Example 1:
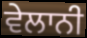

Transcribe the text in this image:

ਵੇਲਾਨੀ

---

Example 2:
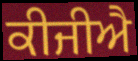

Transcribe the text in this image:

ਕੀਜੀਐ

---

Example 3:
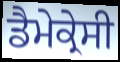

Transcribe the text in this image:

ਡੈਮੇਕ੍ਰੇਸੀ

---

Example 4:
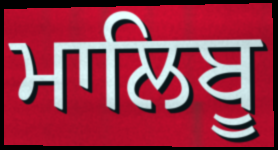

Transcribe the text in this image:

ਮਾਲਿਬੂ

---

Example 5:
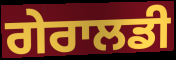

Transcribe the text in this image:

ਗੇਰਾਲਡੀ